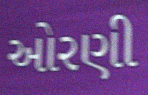
ઓરણી